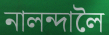
নালন্দালৈ